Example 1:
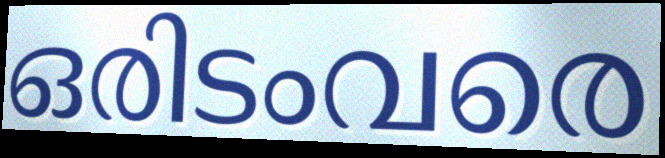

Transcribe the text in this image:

ഒരിടംവരെ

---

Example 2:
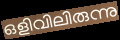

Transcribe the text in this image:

ഒളിവിലിരുന്നു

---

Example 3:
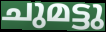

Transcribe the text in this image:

ചുമട്ടു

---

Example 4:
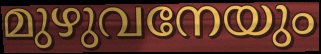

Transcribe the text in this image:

മുഴുവനേയും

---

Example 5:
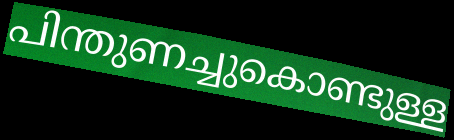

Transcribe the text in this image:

പിന്തുണച്ചുകൊണ്ടുള്ള